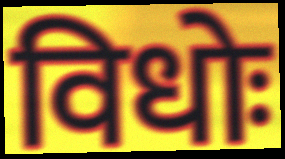
विधोः